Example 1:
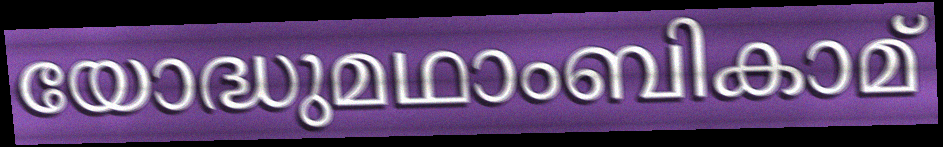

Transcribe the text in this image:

യോദ്ധുമഥാംബികാമ്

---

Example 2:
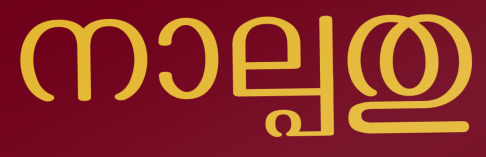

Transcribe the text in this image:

നാല്പതു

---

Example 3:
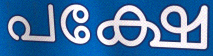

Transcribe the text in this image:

പക്ഷേ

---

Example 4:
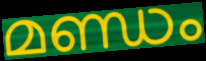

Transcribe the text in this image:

മണ്ഡം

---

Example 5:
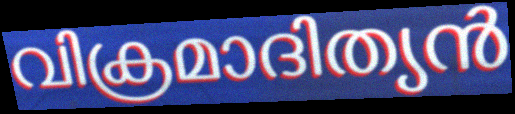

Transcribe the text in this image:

വിക്രമാദിത്യൻ